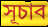
সূচাব